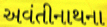
અવંતીનાથના